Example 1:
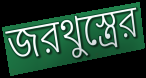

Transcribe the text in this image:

জরথুস্ত্রের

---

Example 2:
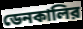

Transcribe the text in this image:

ডেনকালির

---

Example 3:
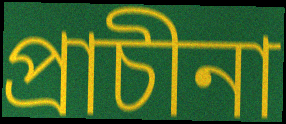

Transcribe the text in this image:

প্রাচীনা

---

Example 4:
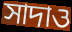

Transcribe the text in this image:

সাদাও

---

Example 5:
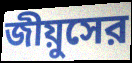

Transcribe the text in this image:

জীয়ুসের